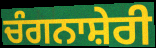
ਚੰਗਨਾਸ਼ੇਰੀ